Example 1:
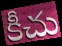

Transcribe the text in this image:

కీచు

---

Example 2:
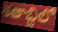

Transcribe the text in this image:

శతాబ్దిలో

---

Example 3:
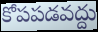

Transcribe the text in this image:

కోపపడవద్దు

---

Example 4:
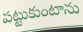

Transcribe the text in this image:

పట్టుకుంటాను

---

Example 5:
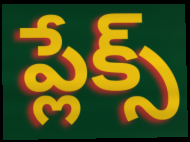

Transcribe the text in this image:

ప్లేక్స్